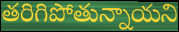
తరిగిపోతున్నాయని